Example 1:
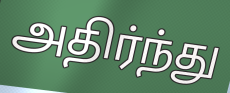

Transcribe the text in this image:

அதிர்ந்து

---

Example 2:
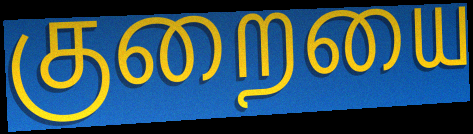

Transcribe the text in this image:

குறையை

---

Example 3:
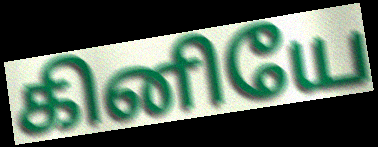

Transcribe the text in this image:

கினியே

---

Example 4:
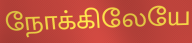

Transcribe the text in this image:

நோக்கிலேயே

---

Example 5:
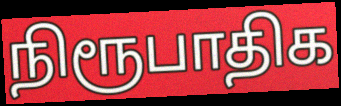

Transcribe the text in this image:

நிரூபாதிக